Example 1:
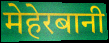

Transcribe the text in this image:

मेहेरबानी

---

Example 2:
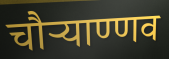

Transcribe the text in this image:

चौऱ्याण्णव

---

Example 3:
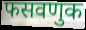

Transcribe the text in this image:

फसवणुक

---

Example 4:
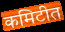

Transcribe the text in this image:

कमिटीत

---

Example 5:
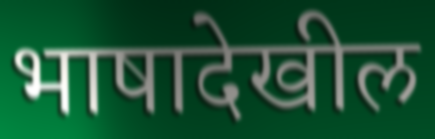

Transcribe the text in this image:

भाषादेखील